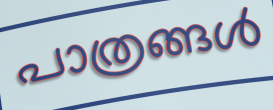
പാത്രങ്ങൾ